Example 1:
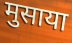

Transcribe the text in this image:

मुसाया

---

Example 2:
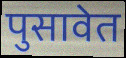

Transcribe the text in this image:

पुसावेत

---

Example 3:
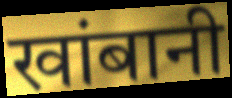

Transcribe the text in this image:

खांबानी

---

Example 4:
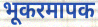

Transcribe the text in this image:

भूकरमापक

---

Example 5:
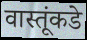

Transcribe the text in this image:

वास्तूंकडे